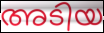
അടിയ